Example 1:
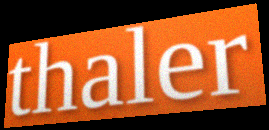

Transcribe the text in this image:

thaler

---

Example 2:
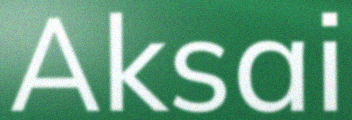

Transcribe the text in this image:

Aksai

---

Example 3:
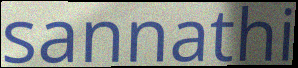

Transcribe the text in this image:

sannathi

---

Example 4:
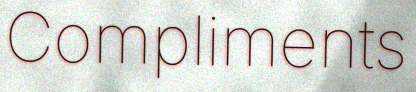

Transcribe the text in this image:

Compliments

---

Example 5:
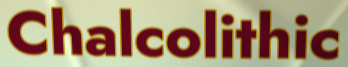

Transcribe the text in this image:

Chalcolithic